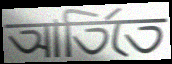
আর্তিতে